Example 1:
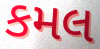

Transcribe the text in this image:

કમલ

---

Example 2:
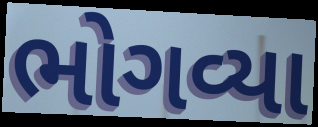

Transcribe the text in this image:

ભોગવ્યા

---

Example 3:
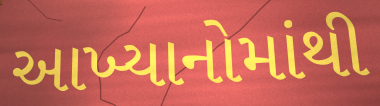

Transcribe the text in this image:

આખ્યાનોમાંથી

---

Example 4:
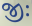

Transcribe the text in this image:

જીઃ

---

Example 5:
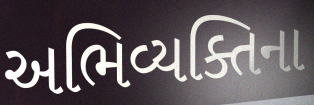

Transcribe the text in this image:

અભિવ્યક્તિના